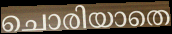
ചൊരിയാതെ